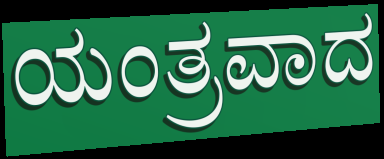
ಯಂತ್ರವಾದ